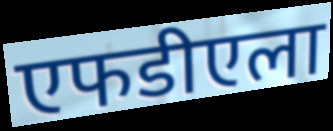
एफडीएला